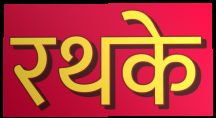
रथके